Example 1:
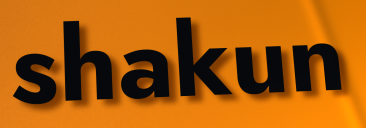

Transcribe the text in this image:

shakun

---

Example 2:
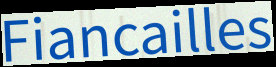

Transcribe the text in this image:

Fiancailles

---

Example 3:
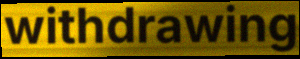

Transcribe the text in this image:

withdrawing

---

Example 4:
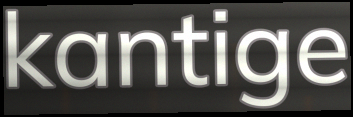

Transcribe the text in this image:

kantige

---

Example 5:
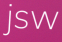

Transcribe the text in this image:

jsw